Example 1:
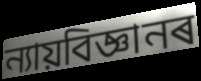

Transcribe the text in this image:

ন্যায়বিজ্ঞানৰ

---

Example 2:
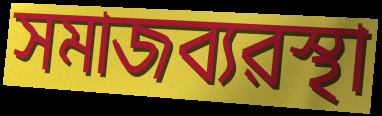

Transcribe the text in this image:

সমাজব্যৱস্থা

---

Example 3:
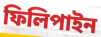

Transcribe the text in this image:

ফিলিপাইন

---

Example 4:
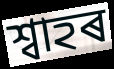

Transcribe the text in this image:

শ্বাহৰ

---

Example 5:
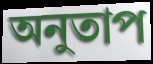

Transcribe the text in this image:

অনুতাপ